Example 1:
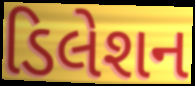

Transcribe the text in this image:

ડિલેશન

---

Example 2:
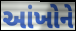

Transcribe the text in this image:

આંખોને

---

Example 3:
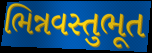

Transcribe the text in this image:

ભિન્નવસ્તુભૂત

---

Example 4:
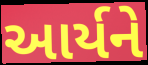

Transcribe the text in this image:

આર્યને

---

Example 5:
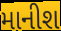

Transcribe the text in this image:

માનીશ